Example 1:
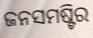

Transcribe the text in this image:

ଜନସମଷ୍ଟିର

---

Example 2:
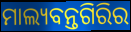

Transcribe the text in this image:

ମାଲ୍ୟବନ୍ତଗିରିର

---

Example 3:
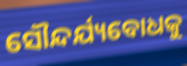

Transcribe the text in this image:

ସୌନ୍ଦର୍ଯ୍ୟବୋଧକୁ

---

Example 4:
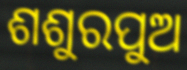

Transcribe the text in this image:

ଶଶୁରପୁଅ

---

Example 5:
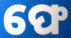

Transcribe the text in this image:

ଫେ